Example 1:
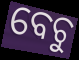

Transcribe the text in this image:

ବେଚୁ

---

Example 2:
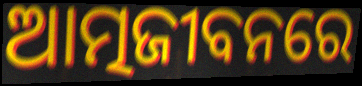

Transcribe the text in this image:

ଆତ୍ମଜୀବନରେ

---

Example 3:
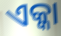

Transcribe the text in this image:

ଏକ୍କା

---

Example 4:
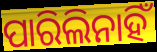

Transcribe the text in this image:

ପାରିଲିନାହିଁ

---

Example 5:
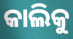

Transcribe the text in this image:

କାଲିକୁ